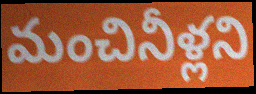
మంచినీళ్లని